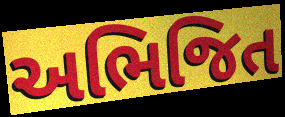
અભિજિત